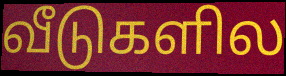
வீடுகளில